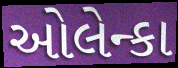
ઓલેન્કા